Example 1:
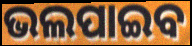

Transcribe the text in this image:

ଭଲପାଇବ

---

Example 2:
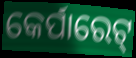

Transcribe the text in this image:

କେର୍ପାରେଟ୍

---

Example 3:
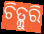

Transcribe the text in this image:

ଚିତ୍ଲୁରି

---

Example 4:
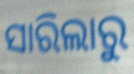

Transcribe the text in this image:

ସାରିଲାରୁ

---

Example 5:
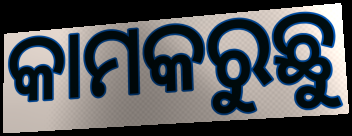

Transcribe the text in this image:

କାମକରୁଛୁ